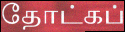
தோட்கப்